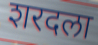
शरदला